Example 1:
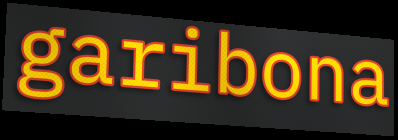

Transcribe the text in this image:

garibona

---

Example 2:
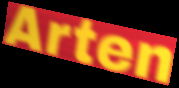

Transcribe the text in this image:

Arten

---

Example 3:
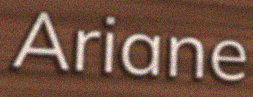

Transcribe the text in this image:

Ariane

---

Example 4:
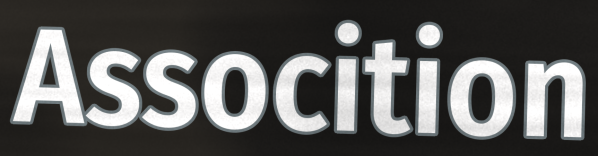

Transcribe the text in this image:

Assocition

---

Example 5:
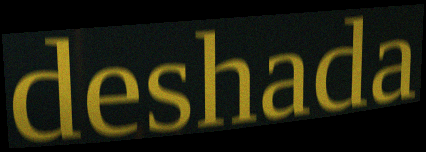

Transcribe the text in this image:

deshada